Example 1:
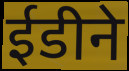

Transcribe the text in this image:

ईडीने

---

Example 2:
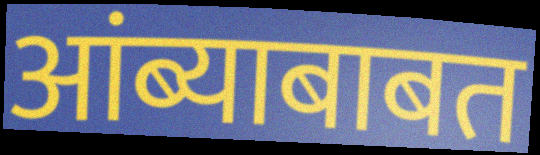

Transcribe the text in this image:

आंब्याबाबत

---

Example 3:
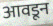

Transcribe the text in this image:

आवडून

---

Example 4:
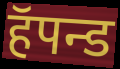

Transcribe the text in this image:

हॅपन्ड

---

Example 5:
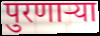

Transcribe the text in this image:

पुरणाऱ्या